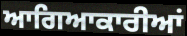
ਆਗਿਆਕਾਰੀਆਂ